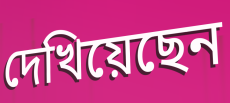
দেখিয়েছেন